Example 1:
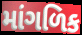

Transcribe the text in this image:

માંગળિક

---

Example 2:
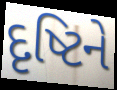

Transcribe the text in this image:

દૃષ્ટિને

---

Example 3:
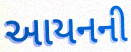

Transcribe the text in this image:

આયનની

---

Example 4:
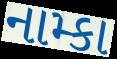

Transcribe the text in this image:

નામ્કા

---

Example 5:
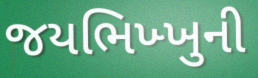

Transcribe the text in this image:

જયભિખ્ખુની